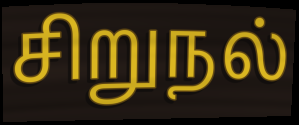
சிறுநல்